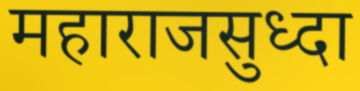
महाराजसुध्दा